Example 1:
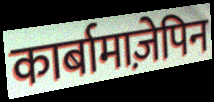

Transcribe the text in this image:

कार्बामाज़ेपिन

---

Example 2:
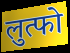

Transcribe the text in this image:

लुत्फो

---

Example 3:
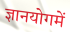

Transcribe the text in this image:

ज्ञानयोगमें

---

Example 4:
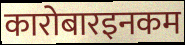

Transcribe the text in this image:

कारोबारइनकम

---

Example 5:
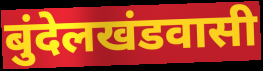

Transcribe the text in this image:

बुंदेलखंडवासी